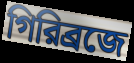
গিরিব্রজে